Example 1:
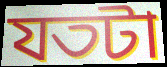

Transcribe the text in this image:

যতটা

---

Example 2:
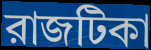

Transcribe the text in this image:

রাজটিকা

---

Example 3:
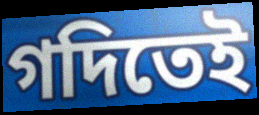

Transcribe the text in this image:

গদিতেই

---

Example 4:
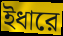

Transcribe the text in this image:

ইধারে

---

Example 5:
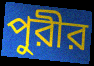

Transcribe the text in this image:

পুরীর